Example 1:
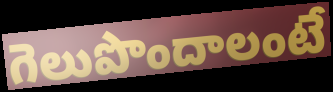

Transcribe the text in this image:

గెలుపొందాలంటే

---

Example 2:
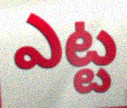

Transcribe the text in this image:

ఎట్ట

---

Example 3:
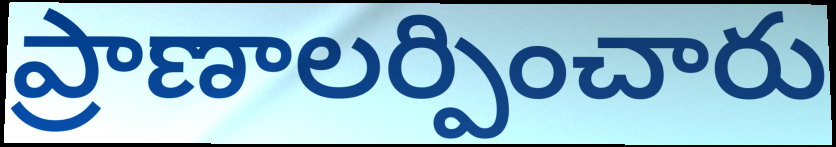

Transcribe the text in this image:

ప్రాణాలర్పించారు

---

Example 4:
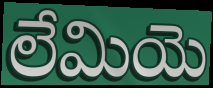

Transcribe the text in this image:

లేమియె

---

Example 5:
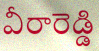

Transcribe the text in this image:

వీరారెడ్డి